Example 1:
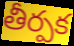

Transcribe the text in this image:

తీర్పక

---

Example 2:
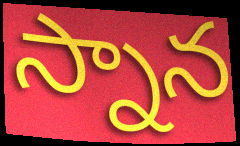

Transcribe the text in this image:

స్నాన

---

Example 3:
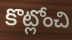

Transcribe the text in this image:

కొట్లోంచి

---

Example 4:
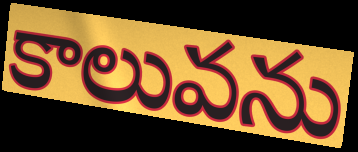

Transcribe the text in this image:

కాలువను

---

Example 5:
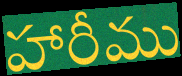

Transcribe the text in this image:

హారీము